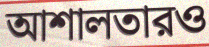
আশালতারও